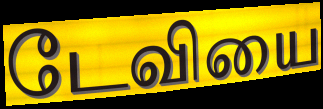
டேவியை